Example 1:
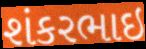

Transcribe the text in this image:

શંકરભાઇ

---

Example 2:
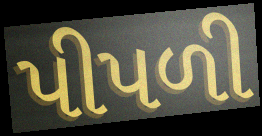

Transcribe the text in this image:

પીપળી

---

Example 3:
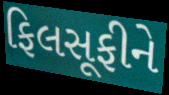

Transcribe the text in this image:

ફિલસૂફીને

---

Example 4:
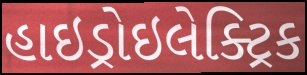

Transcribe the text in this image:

હાઇડ્રોઇલેક્ટ્રિક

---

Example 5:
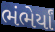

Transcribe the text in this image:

ભંભેર્યાં